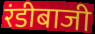
रंडीबाजी